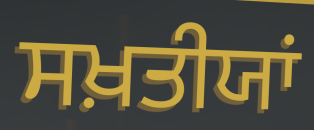
ਸਖ਼ਤੀਯਾਂ